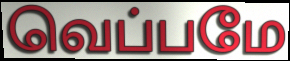
வெப்பமே